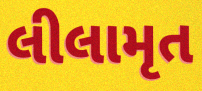
લીલામૃત